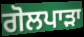
ਗੋਲਪਾੜਾ